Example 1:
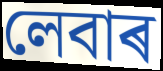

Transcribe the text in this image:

লেবাৰ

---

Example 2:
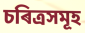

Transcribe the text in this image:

চৰিত্ৰসমূহ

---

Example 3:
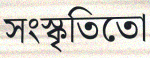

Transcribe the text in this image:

সংস্কৃতিতো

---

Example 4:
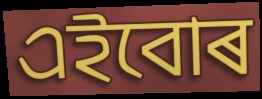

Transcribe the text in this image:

এইবোৰ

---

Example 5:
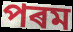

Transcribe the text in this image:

পৰম